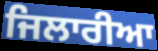
ਜਿਲਾਰੀਆ